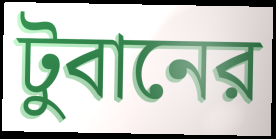
টুবানের